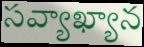
సవ్యాఖ్యాన